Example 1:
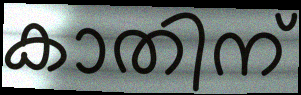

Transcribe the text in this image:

കാതിന്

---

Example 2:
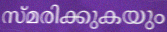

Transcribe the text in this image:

സ്മരിക്കുകയും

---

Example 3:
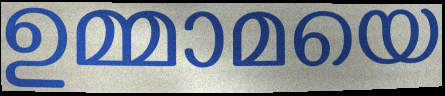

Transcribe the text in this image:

ഉമ്മാമയെ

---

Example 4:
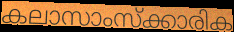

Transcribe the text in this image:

കലാസാംസ്ക്കാരിക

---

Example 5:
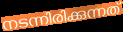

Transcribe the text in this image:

നടന്നിരിക്കുന്നത്